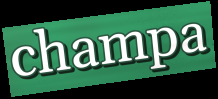
champa